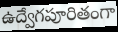
ఉద్వేగపూరితంగా